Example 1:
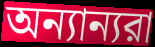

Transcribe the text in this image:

অন্যান্যরা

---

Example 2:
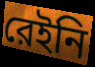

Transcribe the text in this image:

রেইনি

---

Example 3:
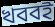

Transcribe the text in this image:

খববই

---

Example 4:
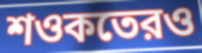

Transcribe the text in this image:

শওকতেরও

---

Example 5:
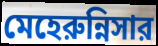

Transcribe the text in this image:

মেহেরুন্নিসার